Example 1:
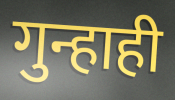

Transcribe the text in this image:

गुन्हाही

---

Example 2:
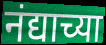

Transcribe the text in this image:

नंद्याच्या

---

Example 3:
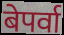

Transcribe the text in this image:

बेपर्वा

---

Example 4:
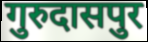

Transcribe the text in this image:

गुरुदासपुर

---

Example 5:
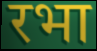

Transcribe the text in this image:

रभा